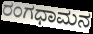
ರಂಗಧಾಮನ